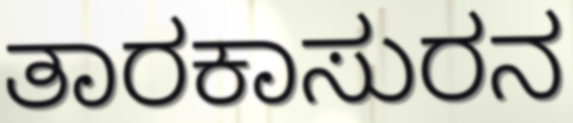
ತಾರಕಾಸುರನ